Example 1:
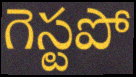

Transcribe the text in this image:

గెస్టపో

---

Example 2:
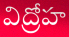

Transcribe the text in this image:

విద్రోహ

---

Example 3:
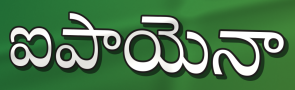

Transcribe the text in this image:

ఐపాయెనా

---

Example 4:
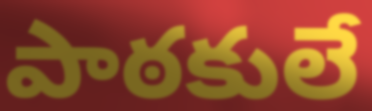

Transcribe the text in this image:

పాఠకులే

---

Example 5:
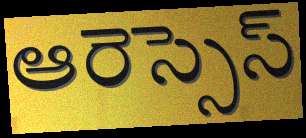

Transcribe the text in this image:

ఆరెస్సెస్